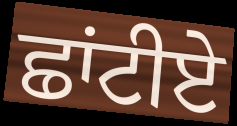
ਛਾਂਟੀਏ